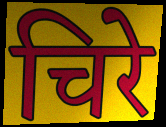
चिरे